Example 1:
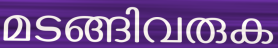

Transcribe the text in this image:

മടങ്ങിവരുക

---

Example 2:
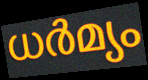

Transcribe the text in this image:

ധർമ്യം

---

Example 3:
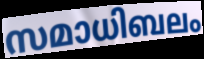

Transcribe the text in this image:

സമാധിബലം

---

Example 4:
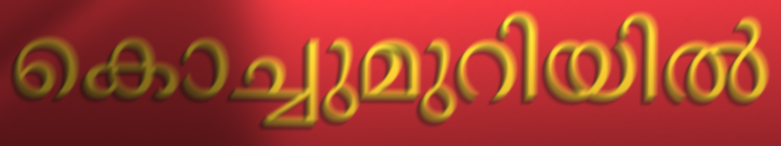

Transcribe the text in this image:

കൊച്ചുമുറിയിൽ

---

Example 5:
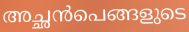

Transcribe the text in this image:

അച്ഛൻപെങ്ങളുടെ